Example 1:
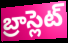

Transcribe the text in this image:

బ్రాస్లెట్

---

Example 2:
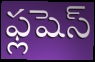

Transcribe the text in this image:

ఫ్లషెస్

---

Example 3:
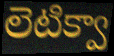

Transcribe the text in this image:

లెటిక్వా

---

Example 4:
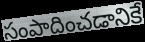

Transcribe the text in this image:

సంపాదించడానికే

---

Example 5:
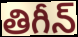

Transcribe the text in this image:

తిగీన్